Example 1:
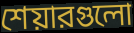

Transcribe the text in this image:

শেয়ারগুলো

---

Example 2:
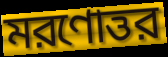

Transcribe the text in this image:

মরণোত্তর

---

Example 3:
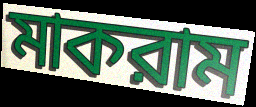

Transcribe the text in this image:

মাকরাম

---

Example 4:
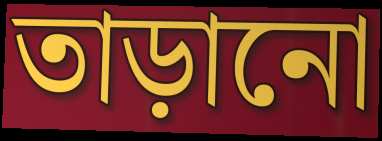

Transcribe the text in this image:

তাড়ানো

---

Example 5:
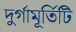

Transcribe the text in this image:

দুর্গামূর্তিটি